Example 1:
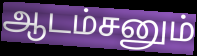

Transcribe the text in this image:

ஆடம்சனும்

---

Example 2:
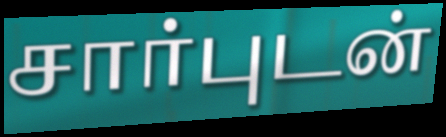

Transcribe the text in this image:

சார்புடன்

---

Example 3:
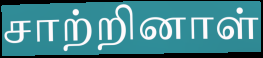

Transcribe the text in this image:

சாற்றினாள்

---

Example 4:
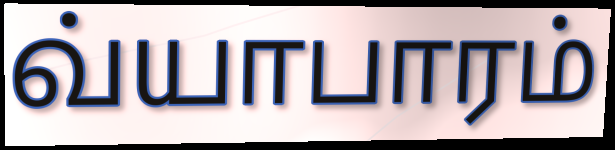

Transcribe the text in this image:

வ்யாபாரம்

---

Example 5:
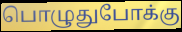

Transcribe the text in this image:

பொழுதுபோக்கு